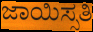
ಜಾಯಿಸ್ಸತಿ